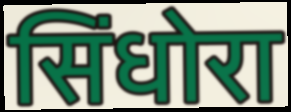
सिंधोरा